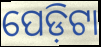
ପେଡ଼ିଟା